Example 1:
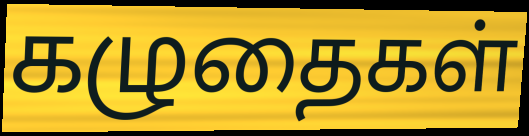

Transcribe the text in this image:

கழுதைகள்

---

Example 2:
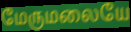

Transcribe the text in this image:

மேருமலையே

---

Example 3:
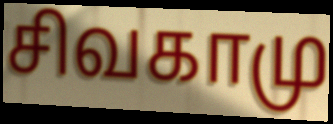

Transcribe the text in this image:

சிவகாமு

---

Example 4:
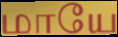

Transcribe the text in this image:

மாயே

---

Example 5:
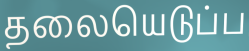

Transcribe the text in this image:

தலையெடுப்ப